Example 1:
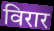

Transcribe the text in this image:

विरार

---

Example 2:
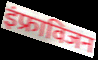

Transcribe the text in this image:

इंफ्राविजन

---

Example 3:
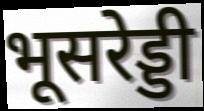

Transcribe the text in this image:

भूसरेड्डी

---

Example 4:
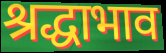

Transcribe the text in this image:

श्रद्धाभाव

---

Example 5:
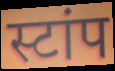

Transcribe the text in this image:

स्टांप